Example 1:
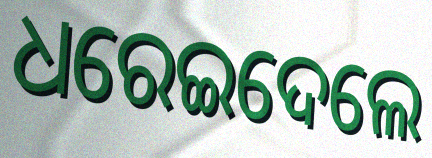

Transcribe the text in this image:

ଧରେଇଦେଲେ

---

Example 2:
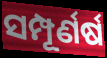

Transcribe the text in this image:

ସମ୍ପୂର୍ଣର୍ଷ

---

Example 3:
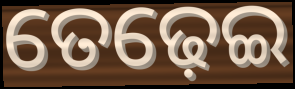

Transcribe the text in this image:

ତେଢ଼େଇ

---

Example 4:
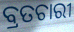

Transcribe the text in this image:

ବ୍ରତଚାରୀ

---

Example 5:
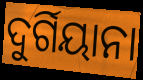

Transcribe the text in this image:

ଦୁର୍ଗିୟାନା